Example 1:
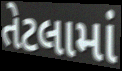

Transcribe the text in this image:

તેટલામાં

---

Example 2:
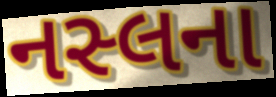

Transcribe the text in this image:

નસ્લના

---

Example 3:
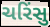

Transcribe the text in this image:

ચરિંસુ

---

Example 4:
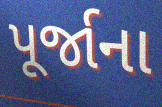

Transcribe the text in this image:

પૂર્જાના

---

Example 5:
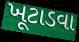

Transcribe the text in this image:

ખૂટાડવા